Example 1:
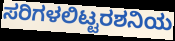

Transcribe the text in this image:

ಸರಿಗಳಲಿಟ್ಟರಶನಿಯ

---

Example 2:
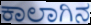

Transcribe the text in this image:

ಕಾಲಾಗಿನ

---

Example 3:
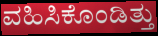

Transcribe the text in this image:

ವಹಿಸಿಕೊಂಡಿತ್ತು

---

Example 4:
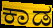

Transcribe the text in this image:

ಕಾಡ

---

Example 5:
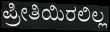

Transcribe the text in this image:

ಪ್ರೀತಿಯಿರಲಿಲ್ಲ